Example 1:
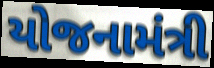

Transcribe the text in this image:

યોજનામંત્રી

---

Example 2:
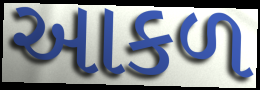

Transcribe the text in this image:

આકળ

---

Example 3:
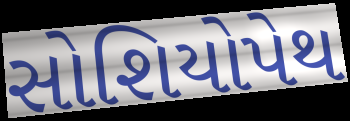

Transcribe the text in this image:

સોશિયોપેથ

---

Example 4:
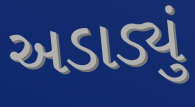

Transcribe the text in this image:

અડાડ્યું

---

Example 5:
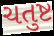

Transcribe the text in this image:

ચતુષ્ટ